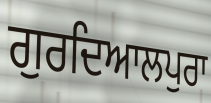
ਗੁਰਦਿਆਲਪੁਰਾ